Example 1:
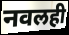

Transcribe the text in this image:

नवलही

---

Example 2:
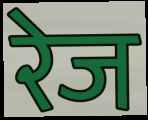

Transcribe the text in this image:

रेज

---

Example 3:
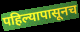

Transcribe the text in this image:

पहिल्यापासूनच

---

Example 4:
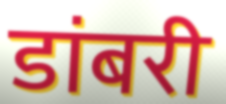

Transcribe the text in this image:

डांबरी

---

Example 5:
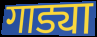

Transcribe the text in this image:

गाड्या